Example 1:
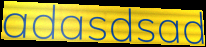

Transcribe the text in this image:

adasdsad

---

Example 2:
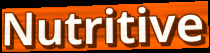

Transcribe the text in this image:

Nutritive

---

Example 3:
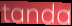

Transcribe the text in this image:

tanda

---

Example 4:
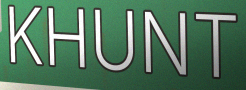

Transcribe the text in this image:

KHUNT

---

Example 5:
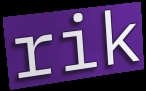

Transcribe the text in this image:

rik